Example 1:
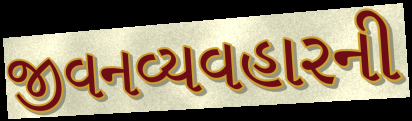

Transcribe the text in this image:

જીવનવ્યવહારની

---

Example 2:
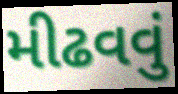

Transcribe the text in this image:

મીઢવવું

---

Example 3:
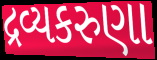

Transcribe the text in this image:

દ્રવ્યકરુણા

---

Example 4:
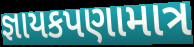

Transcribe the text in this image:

જ્ઞાયકપણામાત્ર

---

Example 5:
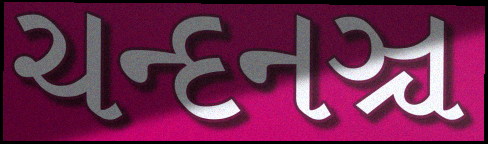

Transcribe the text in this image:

ચન્દનઞ્ચ